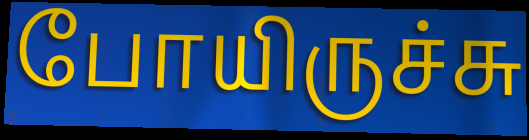
போயிருச்சு